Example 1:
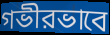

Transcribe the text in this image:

গভীরভাবে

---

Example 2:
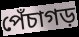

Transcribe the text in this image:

পেঁচাগড়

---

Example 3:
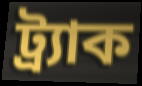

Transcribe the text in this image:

ট্র্যাক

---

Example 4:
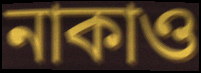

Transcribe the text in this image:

নাকাও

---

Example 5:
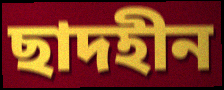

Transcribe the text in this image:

ছাদহীন